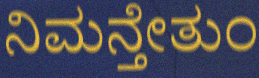
ನಿಮನ್ತೇತುಂ